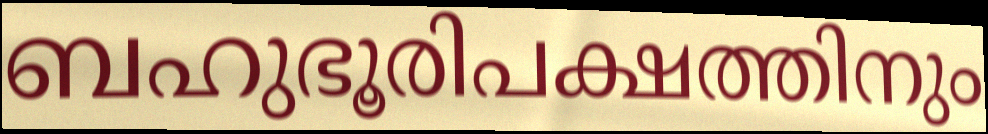
ബഹുഭൂരിപക്ഷത്തിനും